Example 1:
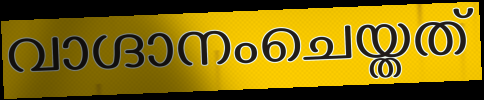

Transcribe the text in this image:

വാഗ്ദാനംചെയ്തത്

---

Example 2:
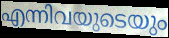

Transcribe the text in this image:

എന്നിവയുടെയും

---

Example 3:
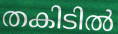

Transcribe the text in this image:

തകിടിൽ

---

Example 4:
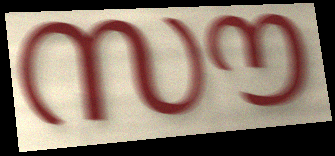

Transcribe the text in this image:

സൗ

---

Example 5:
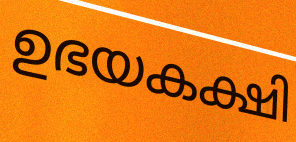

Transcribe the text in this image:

ഉഭയകക്ഷി